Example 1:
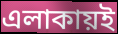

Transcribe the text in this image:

এলাকায়ই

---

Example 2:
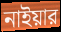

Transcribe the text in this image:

নাইয়ার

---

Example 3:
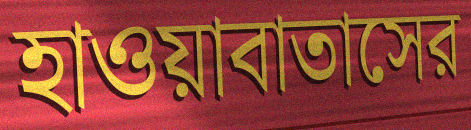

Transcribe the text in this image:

হাওয়াবাতাসের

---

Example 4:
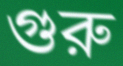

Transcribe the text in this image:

গুরু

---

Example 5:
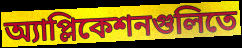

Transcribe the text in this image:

অ্যাপ্লিকেশনগুলিতে